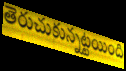
తెరుచుకున్నట్టయింది